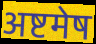
अष्टमेष